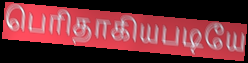
பெரிதாகியபடியே